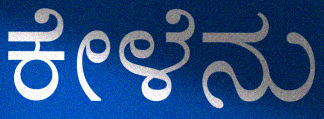
ಕೇಳೆನು